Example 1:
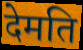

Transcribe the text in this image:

देमति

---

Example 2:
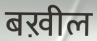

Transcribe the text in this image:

बख़ील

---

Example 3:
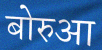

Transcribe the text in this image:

बोरुआ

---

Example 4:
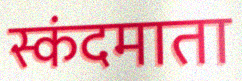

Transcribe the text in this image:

स्‍कंदमाता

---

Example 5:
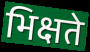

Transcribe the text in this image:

भिक्षते